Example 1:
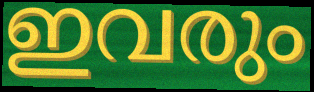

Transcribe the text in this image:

ഇവരും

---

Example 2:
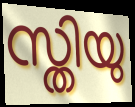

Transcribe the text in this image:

സ്തിയു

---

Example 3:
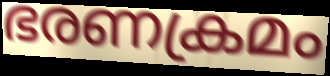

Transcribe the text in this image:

ഭരണക്രമം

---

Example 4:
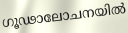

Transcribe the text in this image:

ഗൂഢാലോചനയിൽ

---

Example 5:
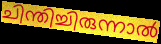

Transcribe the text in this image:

ചിന്തിച്ചിരുന്നാൽ